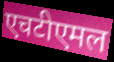
एचटीएमल